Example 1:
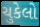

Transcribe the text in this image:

ચુકેલો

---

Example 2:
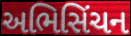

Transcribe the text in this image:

અભિસિંચન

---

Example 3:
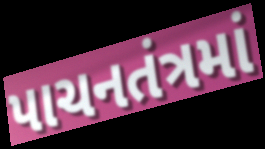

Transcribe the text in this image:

પાચનતંત્રમાં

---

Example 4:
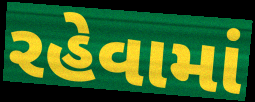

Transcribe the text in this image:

રહેવામાં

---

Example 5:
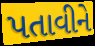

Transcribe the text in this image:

પતાવીને